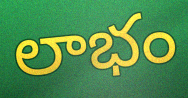
లాభం